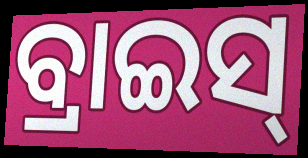
ବ୍ରାଇସ୍